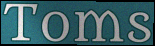
Toms